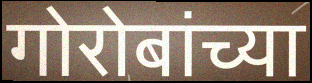
गोरोबांच्या